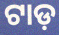
ଟାଡ଼